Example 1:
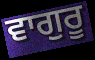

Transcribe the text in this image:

ਵਾਗੁਰੂ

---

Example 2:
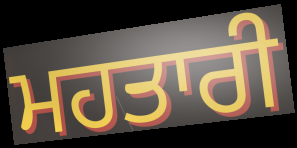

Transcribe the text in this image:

ਮਹਤਾਰੀ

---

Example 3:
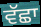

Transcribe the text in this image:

ਵੱਛਾ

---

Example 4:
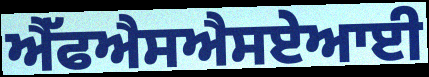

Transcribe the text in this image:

ਐੱਫਐਸਐਸਏਆਈ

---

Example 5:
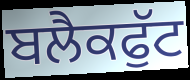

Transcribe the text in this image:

ਬਲੈਕਫੁੱਟ